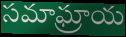
సమాఘ్రాయ